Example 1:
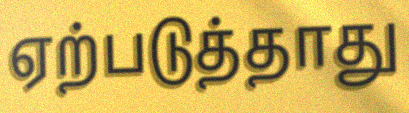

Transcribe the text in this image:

ஏற்படுத்தாது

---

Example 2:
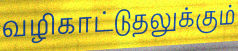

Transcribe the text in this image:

வழிகாட்டுதலுக்கும்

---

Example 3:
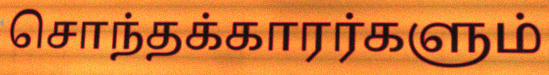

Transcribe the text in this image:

சொந்தக்காரர்களும்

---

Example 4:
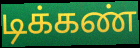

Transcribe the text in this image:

டிக்கண்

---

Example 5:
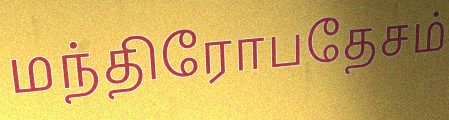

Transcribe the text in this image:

மந்திரோபதேசம்